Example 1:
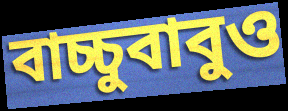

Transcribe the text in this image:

বাচ্চুবাবুও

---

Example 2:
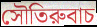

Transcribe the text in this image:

সৌতিরুবাচ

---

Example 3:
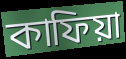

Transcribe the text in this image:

কাফিয়া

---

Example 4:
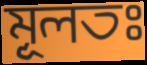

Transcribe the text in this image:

মূলতঃ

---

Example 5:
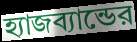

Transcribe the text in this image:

হ্যাজব্যান্ডের